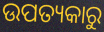
ଉପତ୍ୟକାରୁ